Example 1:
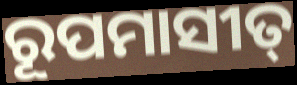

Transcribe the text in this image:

ରୂପମାସୀତ୍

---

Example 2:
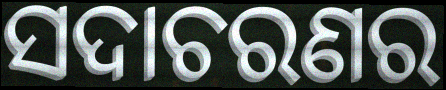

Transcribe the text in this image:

ସଦାଚରଣର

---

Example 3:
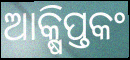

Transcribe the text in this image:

ଆକ୍ଷିପ୍ତକଂ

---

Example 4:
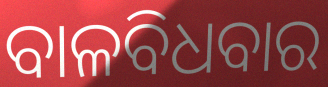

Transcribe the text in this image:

ବାଳବିଧବାର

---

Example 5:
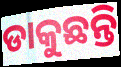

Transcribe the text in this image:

ଡାକୁଛନ୍ତି